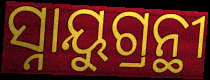
ସ୍ନାୟୁଗ୍ରନ୍ଥୀ